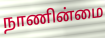
நாணின்மை